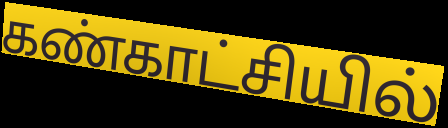
கண்காட்சியில்